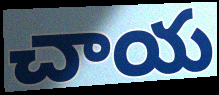
చాయ